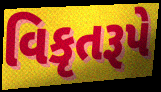
વિકૃતરૂપે